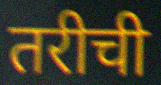
तरीची